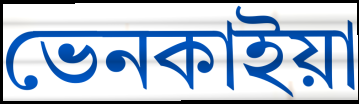
ভেনকাইয়া